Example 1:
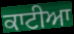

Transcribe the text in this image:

ਕਾਟੀਆ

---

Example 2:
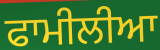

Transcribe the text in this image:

ਫਾਮੀਲੀਆ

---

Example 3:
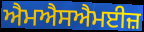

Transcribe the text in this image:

ਐਮਐਸਐਮਈਜ਼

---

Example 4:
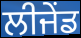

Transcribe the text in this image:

ਲੀਜੇਂਡ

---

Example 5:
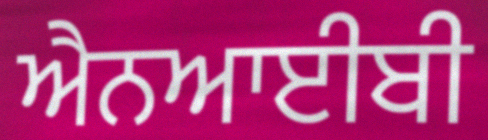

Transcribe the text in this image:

ਐਨਆਈਬੀ